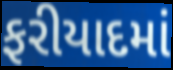
ફરીયાદમાં